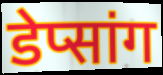
डेप्सांग